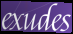
exudes